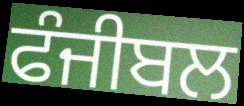
ਫੰਜੀਬਲ